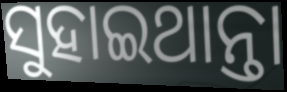
ସୁହାଇଥାନ୍ତା